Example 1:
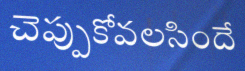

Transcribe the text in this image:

చెప్పుకోవలసిందే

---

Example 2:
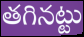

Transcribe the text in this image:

తగినట్టు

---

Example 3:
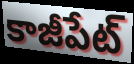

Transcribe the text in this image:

కాజీపేట్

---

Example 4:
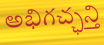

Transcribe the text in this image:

అభిగచ్ఛన్తి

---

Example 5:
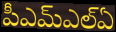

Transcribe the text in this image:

పీఎమ్ఎల్ఏ